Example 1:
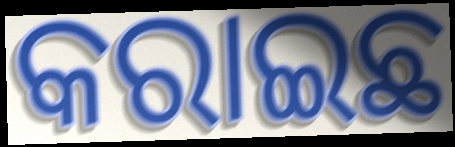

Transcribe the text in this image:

କରାଇଛ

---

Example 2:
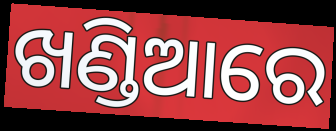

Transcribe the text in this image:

ଖଣ୍ଡିଆରେ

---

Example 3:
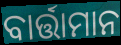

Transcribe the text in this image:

ବାର୍ତ୍ତାମାନ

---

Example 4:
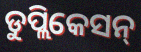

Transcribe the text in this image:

ଡୁପ୍ଲିକେସନ୍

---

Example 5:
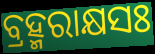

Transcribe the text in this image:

ବ୍ରହ୍ମରାକ୍ଷସଃ